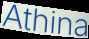
Athina